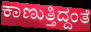
ಕಾಣುತ್ತಿದ್ದಂತೆ